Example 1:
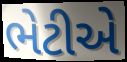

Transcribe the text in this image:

ભેટીએ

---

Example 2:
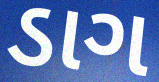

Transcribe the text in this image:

ડાગ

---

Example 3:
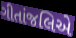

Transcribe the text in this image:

ગીતાંજલિએ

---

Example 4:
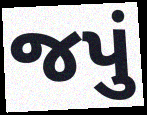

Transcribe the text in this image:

જપું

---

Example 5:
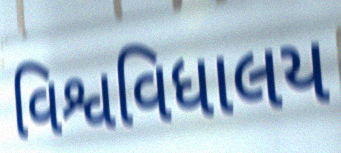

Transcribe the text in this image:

વિશ્વવિધાલય